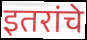
इतरांचे